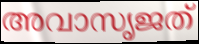
അവാസൃജത്